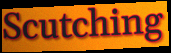
Scutching